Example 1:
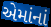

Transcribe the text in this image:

એમાંનાં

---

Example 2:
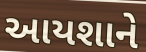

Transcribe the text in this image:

આયશાને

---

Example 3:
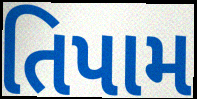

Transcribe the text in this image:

તિપામ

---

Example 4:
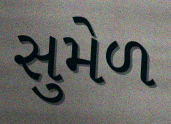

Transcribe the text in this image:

સુમેળ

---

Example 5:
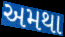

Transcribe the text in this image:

અમથા